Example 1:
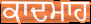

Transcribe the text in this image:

ਕਾਦਮਾਹ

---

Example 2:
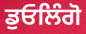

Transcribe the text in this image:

ਡੁਓਲਿੰਗੋ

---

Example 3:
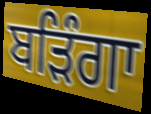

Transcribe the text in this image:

ਬੜਿੰਗਾ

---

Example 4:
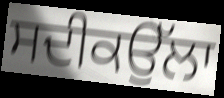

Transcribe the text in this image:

ਸਦੀਕਉੱਲਾ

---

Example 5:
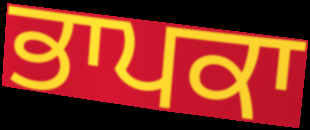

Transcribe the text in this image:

ਭਾਪਕਾ